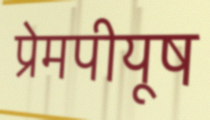
प्रेमपीयूष